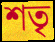
শতৃ